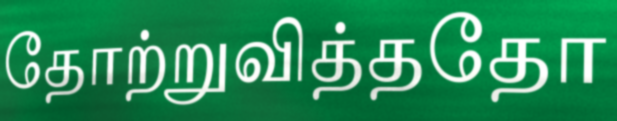
தோற்றுவித்ததோ